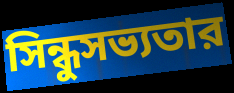
সিন্ধুসভ্যতার